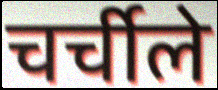
चर्चीले